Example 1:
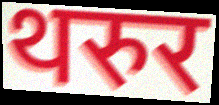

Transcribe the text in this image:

थरुर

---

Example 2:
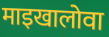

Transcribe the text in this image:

माइखालोवा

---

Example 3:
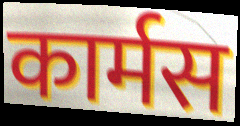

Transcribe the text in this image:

कार्मस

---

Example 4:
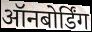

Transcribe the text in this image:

ऑनबोर्डिंग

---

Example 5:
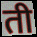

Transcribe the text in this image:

ती